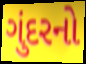
ગુંદરનો